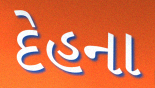
દેહના